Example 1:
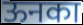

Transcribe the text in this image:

ऊनका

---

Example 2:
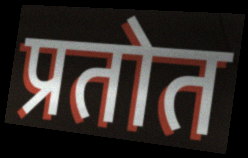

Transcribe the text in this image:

प्रतोत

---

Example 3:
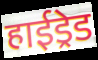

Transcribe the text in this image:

हाईड्रेड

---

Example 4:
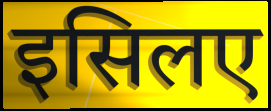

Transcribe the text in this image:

इसिलए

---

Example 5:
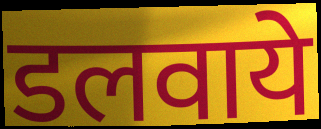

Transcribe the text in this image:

डलवाये